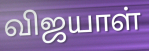
விஜயாள்